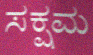
ಸಕ್ಷಮ